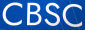
CBSC